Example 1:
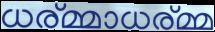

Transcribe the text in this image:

ധര്മ്മാധര്മ്മ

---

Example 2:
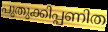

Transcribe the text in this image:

പുതുക്കിപ്പണിത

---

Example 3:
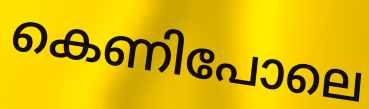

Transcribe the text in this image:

കെണിപോലെ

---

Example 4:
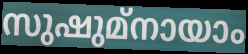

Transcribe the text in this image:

സുഷുമ്നായാം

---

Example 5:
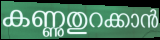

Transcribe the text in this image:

കണ്ണുതുറക്കാൻ